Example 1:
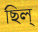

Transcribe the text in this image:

ছিল্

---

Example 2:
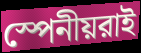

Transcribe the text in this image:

স্পেনীয়রাই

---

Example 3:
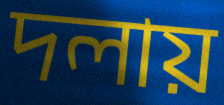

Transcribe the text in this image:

দলায়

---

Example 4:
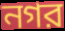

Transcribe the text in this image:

নগর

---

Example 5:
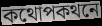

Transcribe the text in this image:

কথোপকথনে